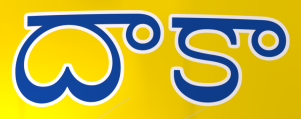
దాకా